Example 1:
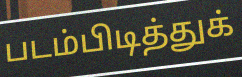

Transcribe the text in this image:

படம்பிடித்துக்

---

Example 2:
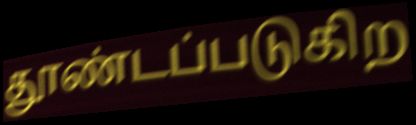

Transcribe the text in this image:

தூண்டப்படுகிற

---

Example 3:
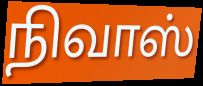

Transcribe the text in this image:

நிவாஸ்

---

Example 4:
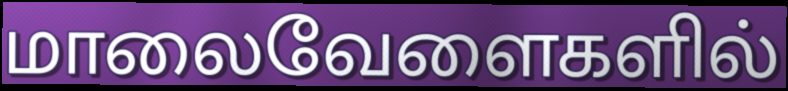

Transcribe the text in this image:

மாலைவேளைகளில்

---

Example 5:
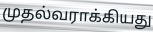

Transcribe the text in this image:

முதல்வராக்கியது